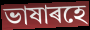
ভাষাৰহে